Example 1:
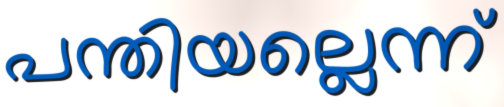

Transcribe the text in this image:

പന്തിയല്ലെന്ന്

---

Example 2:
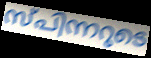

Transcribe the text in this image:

സ്പിന്നറുടെ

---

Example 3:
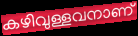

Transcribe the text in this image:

കഴിവുള്ളവനാണ്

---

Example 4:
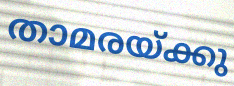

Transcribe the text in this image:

താമരയ്ക്കു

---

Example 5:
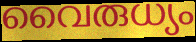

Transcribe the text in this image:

വൈരുധ്യം